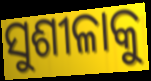
ସୁଶୀଳାକୁ